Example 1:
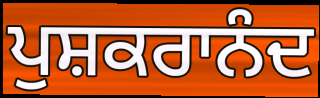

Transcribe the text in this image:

ਪੁਸ਼ਕਰਾਨੰਦ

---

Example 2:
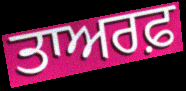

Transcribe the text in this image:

ਤਾਅਰਫ਼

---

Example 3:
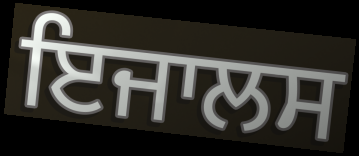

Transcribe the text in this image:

ਇਜਾਲਸ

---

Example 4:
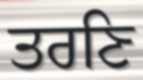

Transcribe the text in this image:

ਤਰਣਿ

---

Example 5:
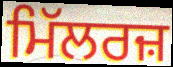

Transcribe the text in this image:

ਮਿੱਲਰਜ਼